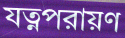
যত্নপরায়ণ